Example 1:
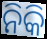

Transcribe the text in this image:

ନିକି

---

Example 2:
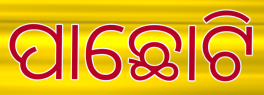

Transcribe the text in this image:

ପାଛୋଟି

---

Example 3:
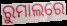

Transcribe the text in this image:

ରୁମାଲରେ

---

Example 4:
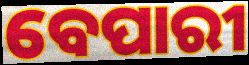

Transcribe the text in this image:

ବେପାରୀ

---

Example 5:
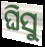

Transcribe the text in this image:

ଘିସୁ